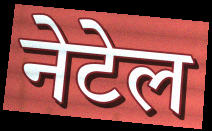
नेटेल